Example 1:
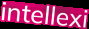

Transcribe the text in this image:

intellexi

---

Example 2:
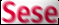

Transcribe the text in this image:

Sese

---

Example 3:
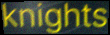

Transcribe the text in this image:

knights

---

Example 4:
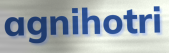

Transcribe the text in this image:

agnihotri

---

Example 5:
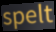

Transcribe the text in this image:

spelt